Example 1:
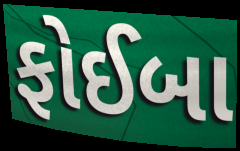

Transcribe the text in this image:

ફોઈબા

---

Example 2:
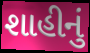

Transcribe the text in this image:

શાહીનું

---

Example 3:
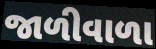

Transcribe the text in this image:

જાળીવાળા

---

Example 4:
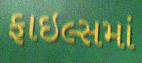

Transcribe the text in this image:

ફાઇલ્સમાં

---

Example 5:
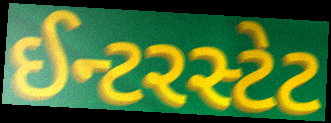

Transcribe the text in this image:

ઈન્ટરસ્ટેટ